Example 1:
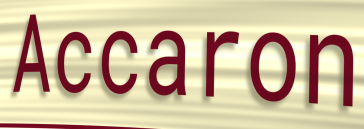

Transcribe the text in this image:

Accaron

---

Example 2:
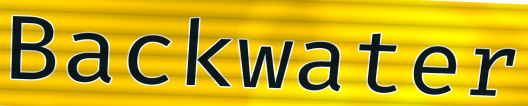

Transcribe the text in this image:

Backwater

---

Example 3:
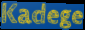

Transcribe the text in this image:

Kadege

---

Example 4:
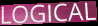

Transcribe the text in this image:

LOGICAL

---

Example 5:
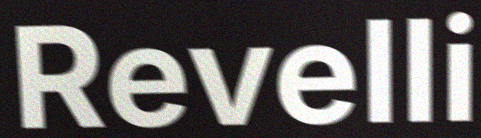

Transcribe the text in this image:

Revelli